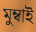
মুম্বাই